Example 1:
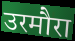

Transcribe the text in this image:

उरमौरा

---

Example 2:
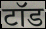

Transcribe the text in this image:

टॉड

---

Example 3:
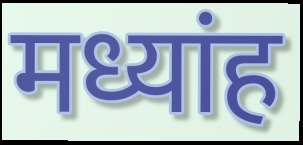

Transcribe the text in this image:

मध्यांह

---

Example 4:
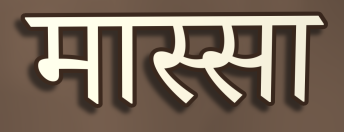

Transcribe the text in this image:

मास्सा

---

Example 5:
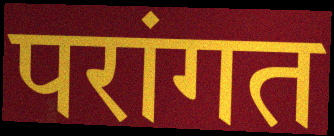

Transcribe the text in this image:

परांगत